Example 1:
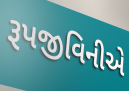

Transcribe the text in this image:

રૂપજીવિનીએ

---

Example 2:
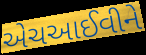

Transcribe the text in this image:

એચઆઈવીને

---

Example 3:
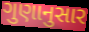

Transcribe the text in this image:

ગુણાનુસાર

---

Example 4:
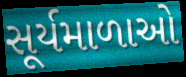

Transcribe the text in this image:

સૂર્યમાળાઓ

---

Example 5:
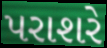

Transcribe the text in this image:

પરાશરે